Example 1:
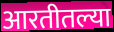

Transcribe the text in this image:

आरतीतल्या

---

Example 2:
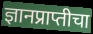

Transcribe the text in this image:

ज्ञानप्राप्तीचा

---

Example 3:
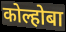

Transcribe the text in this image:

कोल्होबा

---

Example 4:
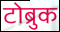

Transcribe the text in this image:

टोब्रुक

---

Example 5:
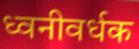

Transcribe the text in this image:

ध्वनीवर्धक